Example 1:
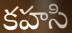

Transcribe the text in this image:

కహసి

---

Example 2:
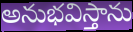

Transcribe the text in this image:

అనుభవిస్తాను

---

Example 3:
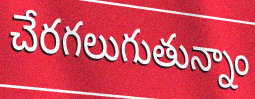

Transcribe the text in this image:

చేరగలుగుతున్నాం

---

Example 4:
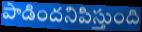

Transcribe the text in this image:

పాడిందనిపిస్తుంది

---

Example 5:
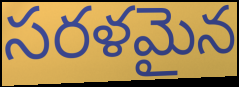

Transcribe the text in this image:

సరళమైన